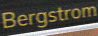
Bergstrom